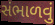
સંભાળવું